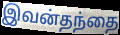
இவன்தந்தை